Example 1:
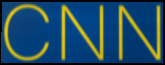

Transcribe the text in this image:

CNN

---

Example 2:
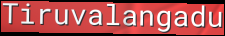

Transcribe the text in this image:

Tiruvalangadu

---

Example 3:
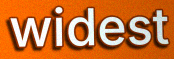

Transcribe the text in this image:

widest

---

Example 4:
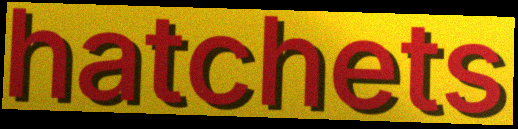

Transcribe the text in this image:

hatchets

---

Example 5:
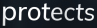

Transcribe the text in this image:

protects